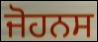
ਜੋਹਨਸ